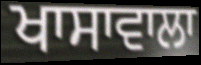
ਖਾਸਾਵਾਲਾ